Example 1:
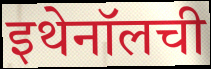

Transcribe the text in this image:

इथेनॉलची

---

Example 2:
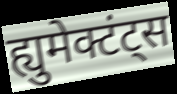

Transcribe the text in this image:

ह्युमेक्टंट्स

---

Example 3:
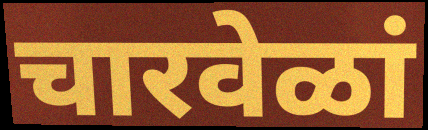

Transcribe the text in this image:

चारवेळां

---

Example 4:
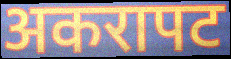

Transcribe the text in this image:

अकरापट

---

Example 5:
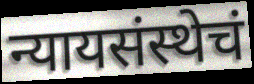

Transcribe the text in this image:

न्यायसंस्थेचं